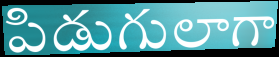
పిడుగులాగా